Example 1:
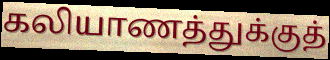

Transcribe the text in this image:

கலியாணத்துக்குத்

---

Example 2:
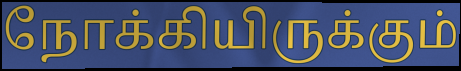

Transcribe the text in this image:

நோக்கியிருக்கும்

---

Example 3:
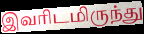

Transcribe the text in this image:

இவரிடமிருந்து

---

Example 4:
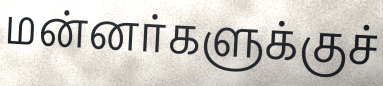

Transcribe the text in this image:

மன்னர்களுக்குச்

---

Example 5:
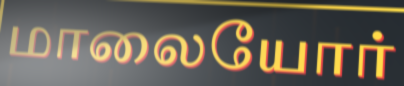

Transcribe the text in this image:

மாலையோர்